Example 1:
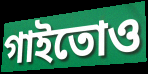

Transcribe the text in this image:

গাইতোও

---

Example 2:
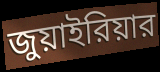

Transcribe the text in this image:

জুয়াইরিয়ার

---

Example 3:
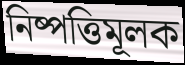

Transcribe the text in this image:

নিষ্পত্তিমূলক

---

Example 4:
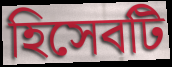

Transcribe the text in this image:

হিসেবটি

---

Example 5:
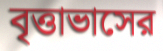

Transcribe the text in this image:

বৃত্তাভাসের